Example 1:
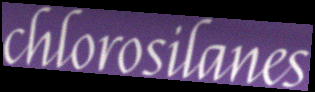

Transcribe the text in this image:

chlorosilanes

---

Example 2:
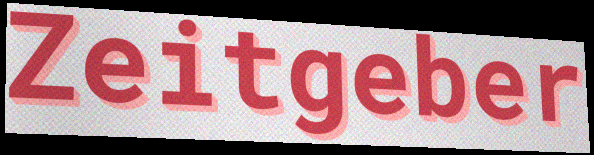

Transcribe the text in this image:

Zeitgeber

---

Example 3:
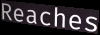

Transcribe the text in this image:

Reaches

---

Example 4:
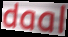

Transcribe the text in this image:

daal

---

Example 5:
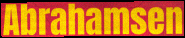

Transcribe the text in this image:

Abrahamsen